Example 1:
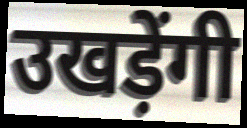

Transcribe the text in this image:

उखड़ेंगी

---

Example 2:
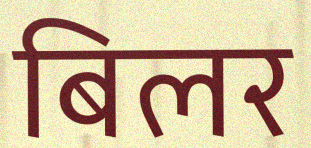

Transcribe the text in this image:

बिलर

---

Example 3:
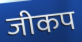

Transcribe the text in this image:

जीकप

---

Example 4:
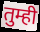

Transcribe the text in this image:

तुम्ही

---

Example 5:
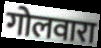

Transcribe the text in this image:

गोलवारा